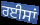
ਰਈਸਾਂ